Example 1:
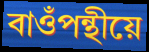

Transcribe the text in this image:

বাওঁপন্থীয়ে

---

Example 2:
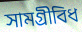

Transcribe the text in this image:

সামগ্ৰীবিধ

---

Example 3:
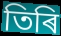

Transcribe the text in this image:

তিৰি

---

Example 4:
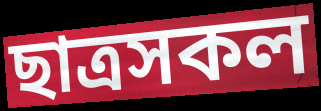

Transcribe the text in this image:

ছাত্ৰসকল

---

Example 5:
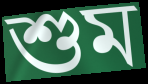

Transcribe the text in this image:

শুম